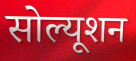
सोल्‍यूशन